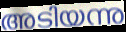
അടിയന്നു